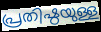
പ്രതിഷ്ഠയുള്ള